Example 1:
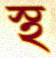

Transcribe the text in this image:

স্থ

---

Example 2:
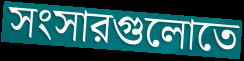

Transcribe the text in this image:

সংসারগুলোতে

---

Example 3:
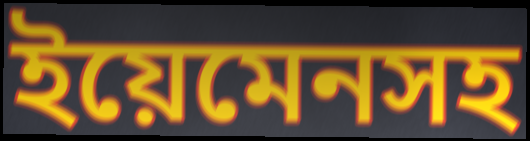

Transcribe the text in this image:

ইয়েমেনসহ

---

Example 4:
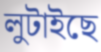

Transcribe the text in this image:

লুটাইছে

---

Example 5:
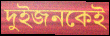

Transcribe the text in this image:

দুইজনকেই